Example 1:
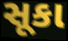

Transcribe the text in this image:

સૂકા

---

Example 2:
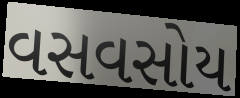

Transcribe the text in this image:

વસવસોય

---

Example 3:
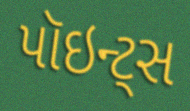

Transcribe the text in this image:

પૉઇન્ટ્સ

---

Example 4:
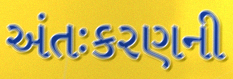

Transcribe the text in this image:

અંતઃકરણની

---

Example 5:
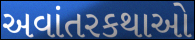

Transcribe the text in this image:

અવાંતરકથાઓ